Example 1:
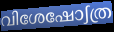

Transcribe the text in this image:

വിശേഷോഽത്ര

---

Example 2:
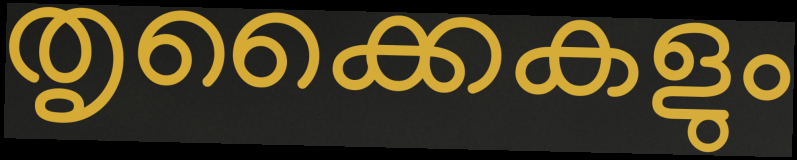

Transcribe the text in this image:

തൃക്കൈകളും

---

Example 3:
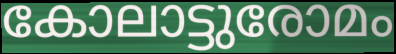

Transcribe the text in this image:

കോലാട്ടുരോമം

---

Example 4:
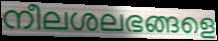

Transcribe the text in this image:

നീലശലഭങ്ങളെ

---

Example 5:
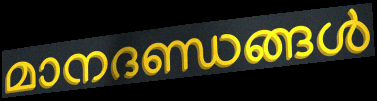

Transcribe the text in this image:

മാനദണ്ഡങ്ങൾ